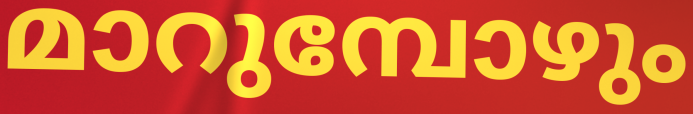
മാറുമ്പോഴും